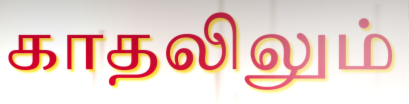
காதலிலும்